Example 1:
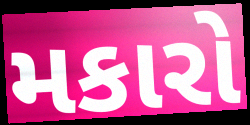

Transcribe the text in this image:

મકારો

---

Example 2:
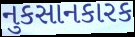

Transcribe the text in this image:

નુકસાનકારક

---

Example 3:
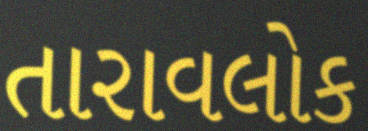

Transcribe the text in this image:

તારાવલોક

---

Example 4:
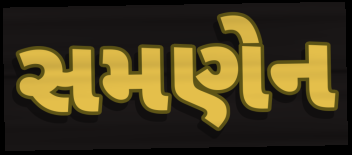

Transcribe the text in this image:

સમણેન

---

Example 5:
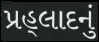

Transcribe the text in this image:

પ્રહ્‌લાદનું